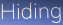
Hiding